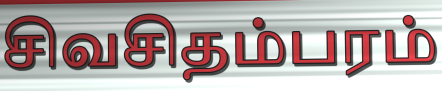
சிவசிதம்பரம்